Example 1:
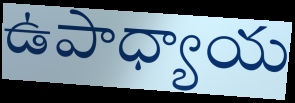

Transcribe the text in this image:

ఉపాధ్యాయ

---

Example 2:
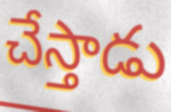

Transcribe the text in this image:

చేస్తాడు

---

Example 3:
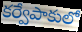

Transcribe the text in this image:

కర్వేపాకులో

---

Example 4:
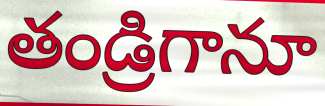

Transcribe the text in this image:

తండ్రిగానూ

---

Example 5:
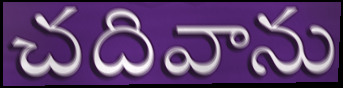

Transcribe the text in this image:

చదివాను